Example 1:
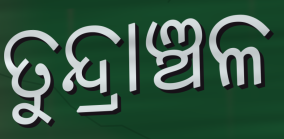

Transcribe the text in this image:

ତୁନ୍ଦ୍ରାଞ୍ଚଳ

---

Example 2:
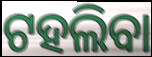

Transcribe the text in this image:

ଟହଲିବା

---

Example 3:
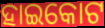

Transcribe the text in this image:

ହାଇକୋଟ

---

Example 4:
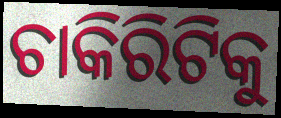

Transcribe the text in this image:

ଚାକିରିଟିକୁ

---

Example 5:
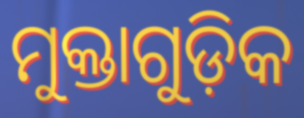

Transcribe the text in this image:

ମୁକ୍ତାଗୁଡ଼ିକ